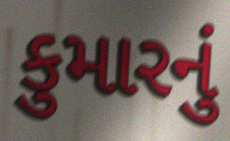
કુમારનું